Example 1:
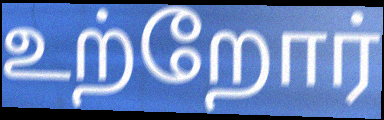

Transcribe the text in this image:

உற்றோர்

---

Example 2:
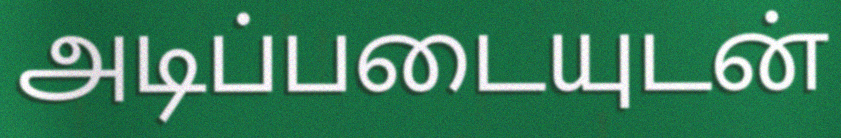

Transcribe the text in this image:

அடிப்படையுடன்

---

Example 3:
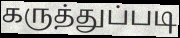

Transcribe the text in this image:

கருத்துப்படி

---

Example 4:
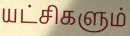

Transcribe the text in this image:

யட்சிகளும்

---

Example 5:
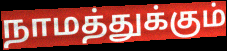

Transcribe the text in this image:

நாமத்துக்கும்